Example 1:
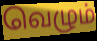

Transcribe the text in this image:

வெழும்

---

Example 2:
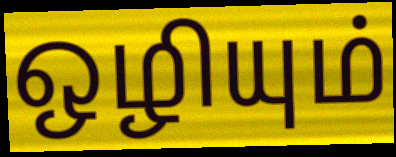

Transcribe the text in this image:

ஒழியும்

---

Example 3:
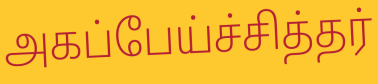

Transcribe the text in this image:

அகப்பேய்ச்சித்தர்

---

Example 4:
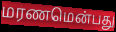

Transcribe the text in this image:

மரணமென்பது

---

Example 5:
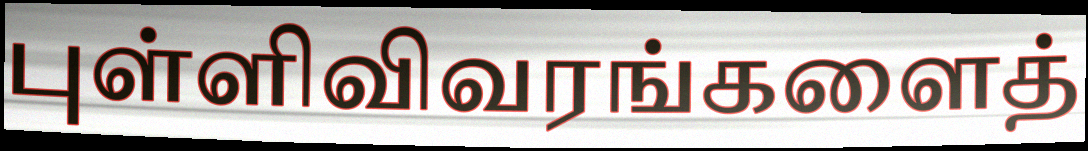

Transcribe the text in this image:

புள்ளிவிவரங்களைத்